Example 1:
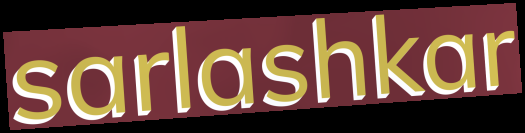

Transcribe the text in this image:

sarlashkar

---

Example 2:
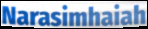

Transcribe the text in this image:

Narasimhaiah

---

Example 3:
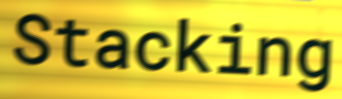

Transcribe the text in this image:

Stacking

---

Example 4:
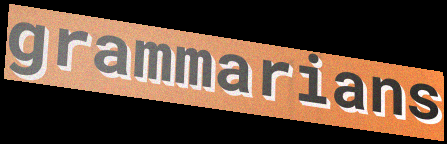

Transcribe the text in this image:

grammarians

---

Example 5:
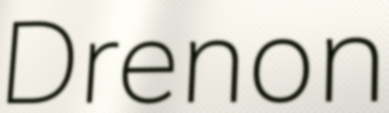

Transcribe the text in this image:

Drenon